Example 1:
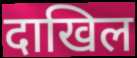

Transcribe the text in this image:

दाखिल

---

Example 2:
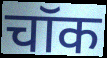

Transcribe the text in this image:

चॉक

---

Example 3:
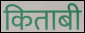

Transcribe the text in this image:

किताबी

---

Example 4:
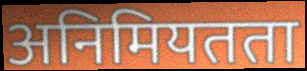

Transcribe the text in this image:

अनिमियतता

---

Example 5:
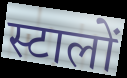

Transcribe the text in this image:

स्टालों